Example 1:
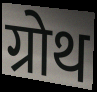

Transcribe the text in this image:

ग्रोथ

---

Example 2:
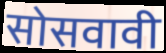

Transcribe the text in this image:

सोसवावी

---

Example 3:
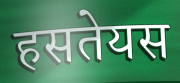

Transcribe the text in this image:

हसतेयस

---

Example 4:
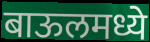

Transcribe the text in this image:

बाऊलमध्ये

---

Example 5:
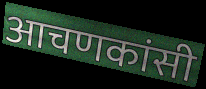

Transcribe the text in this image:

आचणकांसी